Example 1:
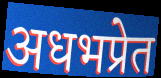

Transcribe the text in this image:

अधभप्रेत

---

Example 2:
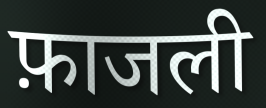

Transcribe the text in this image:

फ़ाजली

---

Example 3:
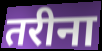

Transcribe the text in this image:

तरीना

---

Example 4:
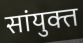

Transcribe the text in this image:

सांयुक्त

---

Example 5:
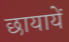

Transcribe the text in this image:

छायायें